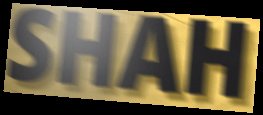
SHAH